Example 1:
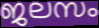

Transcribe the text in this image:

ജലസം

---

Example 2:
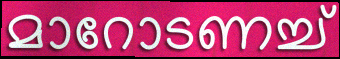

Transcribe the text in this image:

മാറോടണച്ച്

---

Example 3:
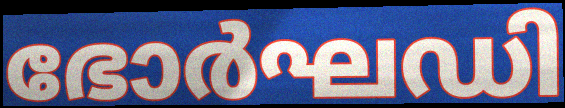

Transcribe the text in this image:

ഭോർഘഡി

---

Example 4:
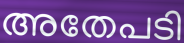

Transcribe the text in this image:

അതേപടി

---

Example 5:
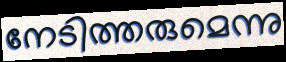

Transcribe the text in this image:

നേടിത്തരുമെന്നു